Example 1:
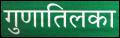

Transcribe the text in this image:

गुणातिलका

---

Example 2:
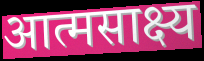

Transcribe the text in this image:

आत्मसाक्ष्य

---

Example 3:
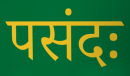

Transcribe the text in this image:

पसंदः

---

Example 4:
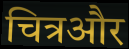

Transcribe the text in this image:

चित्रऔर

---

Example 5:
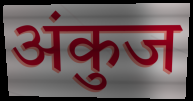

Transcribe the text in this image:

अंकुज